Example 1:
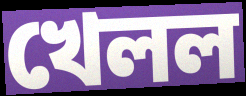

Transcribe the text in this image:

খেলল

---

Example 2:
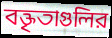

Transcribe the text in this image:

বক্তৃতাগুলির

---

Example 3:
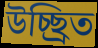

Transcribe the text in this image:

উচ্ছ্রিত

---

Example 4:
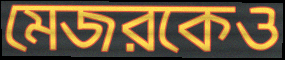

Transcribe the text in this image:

মেজরকেও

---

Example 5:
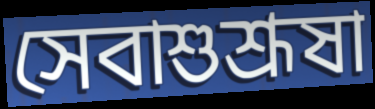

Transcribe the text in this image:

সেবাশুশ্রূষা